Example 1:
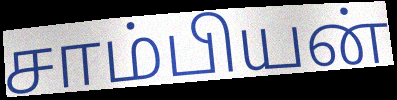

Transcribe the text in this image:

சாம்பியன்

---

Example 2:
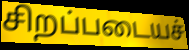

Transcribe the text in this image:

சிறப்படையச்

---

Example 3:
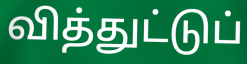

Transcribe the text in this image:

வித்துட்டுப்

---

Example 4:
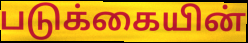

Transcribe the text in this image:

படுக்கையின்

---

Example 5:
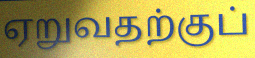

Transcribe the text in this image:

ஏறுவதற்குப்